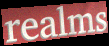
realms